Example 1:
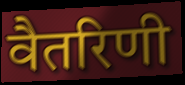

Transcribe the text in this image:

वैतरिणी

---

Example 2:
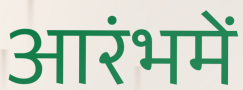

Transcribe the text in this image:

आरंभमें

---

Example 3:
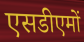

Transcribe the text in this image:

एसडीएमों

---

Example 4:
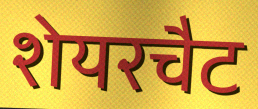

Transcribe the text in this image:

शेयरचैट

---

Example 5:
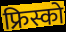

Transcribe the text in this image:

फ्रिस्को